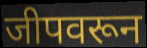
जीपवरून